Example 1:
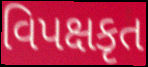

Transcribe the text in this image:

વિપક્ષકૃત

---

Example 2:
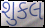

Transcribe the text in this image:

શુકલ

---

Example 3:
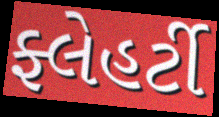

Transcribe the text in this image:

ફ્લેહર્ટી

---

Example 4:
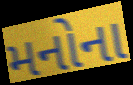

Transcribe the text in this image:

મનોના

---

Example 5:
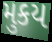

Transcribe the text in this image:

મુકય